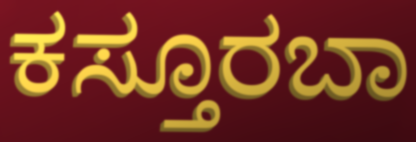
ಕಸ್ತೂರಬಾ